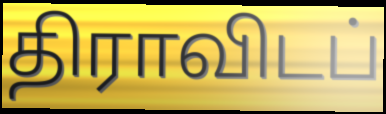
திராவிடப்